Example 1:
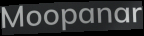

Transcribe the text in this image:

Moopanar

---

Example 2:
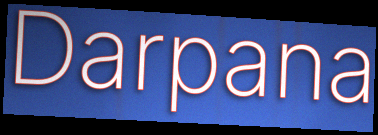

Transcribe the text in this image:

Darpana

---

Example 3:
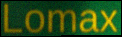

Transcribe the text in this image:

Lomax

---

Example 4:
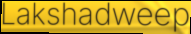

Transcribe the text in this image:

Lakshadweep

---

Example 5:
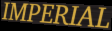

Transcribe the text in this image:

IMPERIAL